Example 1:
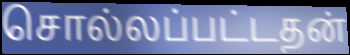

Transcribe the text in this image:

சொல்லப்பட்டதன்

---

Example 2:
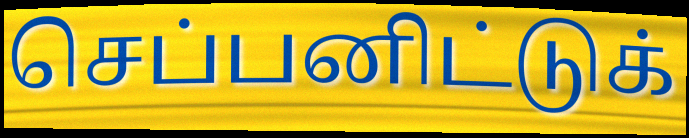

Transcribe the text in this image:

செப்பனிட்டுக்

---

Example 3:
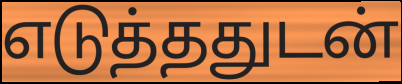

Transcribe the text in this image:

எடுத்ததுடன்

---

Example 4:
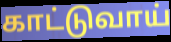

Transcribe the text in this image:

காட்டுவாய்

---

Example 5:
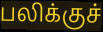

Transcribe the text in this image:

பலிக்குச்